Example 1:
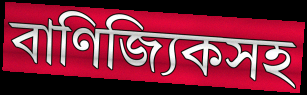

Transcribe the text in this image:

বাণিজ্যিকসহ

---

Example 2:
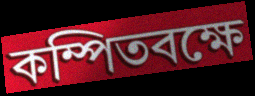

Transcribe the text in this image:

কম্পিতবক্ষে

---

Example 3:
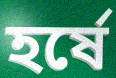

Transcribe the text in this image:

হর্ষে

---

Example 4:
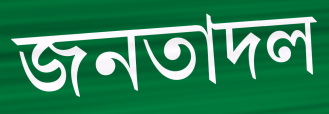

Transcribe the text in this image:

জনতাদল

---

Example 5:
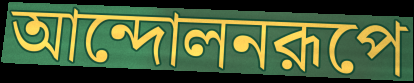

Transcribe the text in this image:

আন্দোলনরূপে